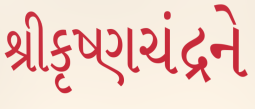
શ્રીકૃષ્ણચંદ્રને